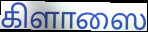
கிளாஸை